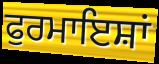
ਫੁਰਮਾਇਸ਼ਾਂ